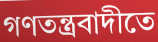
গণতন্ত্রবাদীতে